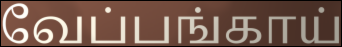
வேப்பங்காய்